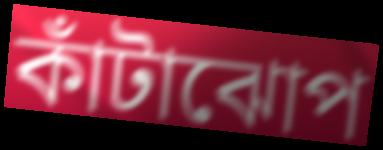
কাঁটাঝোপ